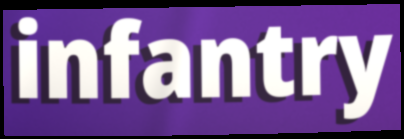
infantry